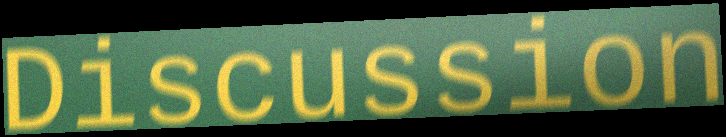
Discussion